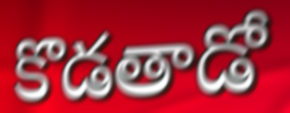
కొడతాడో